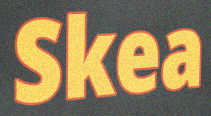
Skea